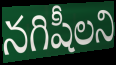
నగిషీలని